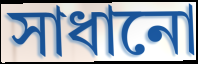
সাধানো